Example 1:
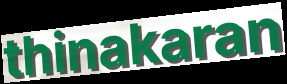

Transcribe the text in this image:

thinakaran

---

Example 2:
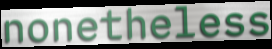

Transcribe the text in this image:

nonetheless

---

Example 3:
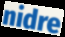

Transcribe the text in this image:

nidre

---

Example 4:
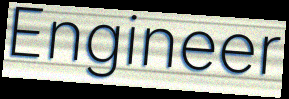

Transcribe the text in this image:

Engineer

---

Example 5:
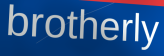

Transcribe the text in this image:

brotherly